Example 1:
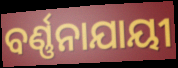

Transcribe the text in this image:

ବର୍ଣ୍ଣନାଯାୟୀ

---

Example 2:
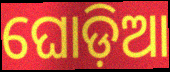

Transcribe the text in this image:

ଘୋଡ଼ିଆ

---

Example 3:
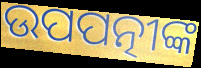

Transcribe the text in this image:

ଉପପତ୍ନୀଙ୍କ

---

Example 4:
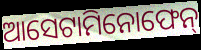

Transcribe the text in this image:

ଆସେଟାମିନୋଫେନ୍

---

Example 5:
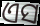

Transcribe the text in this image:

ଏସ